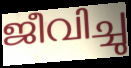
ജീവിച്ചു